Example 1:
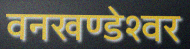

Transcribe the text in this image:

वनखण्डेश्वर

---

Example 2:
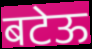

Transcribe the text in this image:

बटेऊ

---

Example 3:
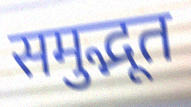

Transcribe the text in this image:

समुद्भूत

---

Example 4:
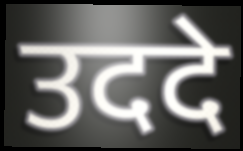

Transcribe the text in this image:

उददे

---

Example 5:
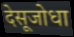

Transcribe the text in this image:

देसूजोधा